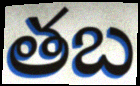
తబ